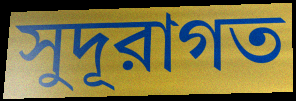
সুদূরাগত